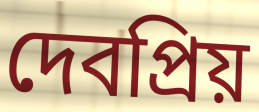
দেবপ্রিয়